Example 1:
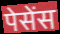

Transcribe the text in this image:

पेसेंस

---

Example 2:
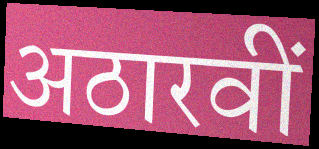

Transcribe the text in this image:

अठारवीं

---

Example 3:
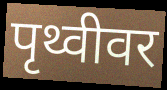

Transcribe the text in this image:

पृथ्वीवर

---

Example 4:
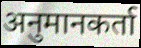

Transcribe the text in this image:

अनुमानकर्ता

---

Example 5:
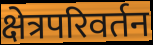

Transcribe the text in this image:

क्षेत्रपरिवर्तन